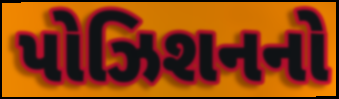
પોઝિશનનો